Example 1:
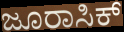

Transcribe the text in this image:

ಜೂರಾಸಿಕ್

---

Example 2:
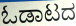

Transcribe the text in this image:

ಓಡಾಟದ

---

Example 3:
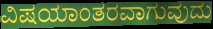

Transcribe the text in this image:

ವಿಷಯಾಂತರವಾಗುವುದು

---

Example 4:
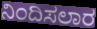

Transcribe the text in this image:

ನಿಂದಿಸಲಾರ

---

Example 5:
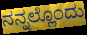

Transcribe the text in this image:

ನನ್ನಲ್ಲೊಂದು